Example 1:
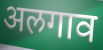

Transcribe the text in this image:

अलगाव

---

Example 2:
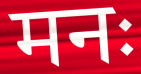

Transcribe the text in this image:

मनः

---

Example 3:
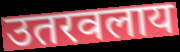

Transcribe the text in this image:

उतरवलाय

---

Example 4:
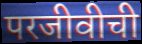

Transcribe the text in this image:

परजीवीची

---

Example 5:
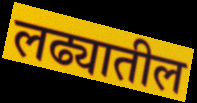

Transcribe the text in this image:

लढ्यातील